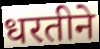
धरतीने